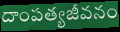
దాంపత్యజీవనం